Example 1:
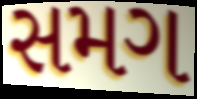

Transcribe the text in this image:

સમગ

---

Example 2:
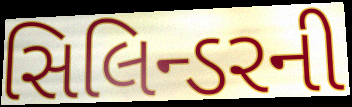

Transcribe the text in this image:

સિલિન્ડરની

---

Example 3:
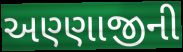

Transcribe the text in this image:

અણ્ણાજીની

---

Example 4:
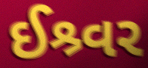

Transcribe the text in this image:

ઈશ્ર્વર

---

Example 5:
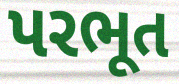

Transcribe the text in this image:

પરભૂત